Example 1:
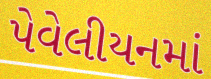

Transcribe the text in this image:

પેવેલીયનમાં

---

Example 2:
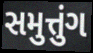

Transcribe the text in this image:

સમુત્તુંગ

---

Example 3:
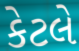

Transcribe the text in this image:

કેટલે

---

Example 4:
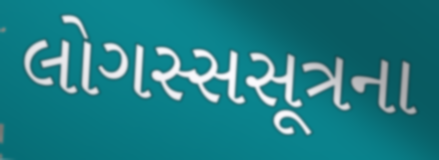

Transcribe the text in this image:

લોગસ્સસૂત્રના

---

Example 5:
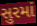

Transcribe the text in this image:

સુરમાં